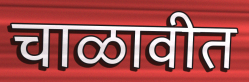
चाळावीत